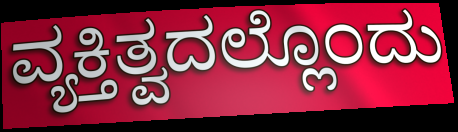
ವ್ಯಕ್ತಿತ್ವದಲ್ಲೊಂದು